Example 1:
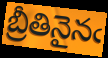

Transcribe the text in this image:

బ్రీతినైనఁ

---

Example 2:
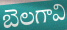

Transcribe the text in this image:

బెలగావి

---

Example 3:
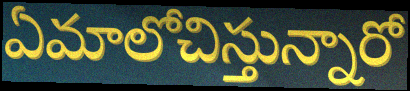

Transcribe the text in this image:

ఏమాలోచిస్తున్నారో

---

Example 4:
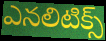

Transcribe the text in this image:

ఎనలిటిక్స్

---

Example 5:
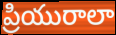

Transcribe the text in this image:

ప్రియురాలా